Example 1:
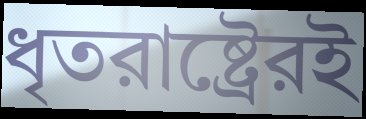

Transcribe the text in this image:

ধৃতরাষ্ট্রেরই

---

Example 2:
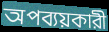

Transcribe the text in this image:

অপব্যয়কারী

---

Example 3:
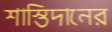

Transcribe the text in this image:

শাস্তিদানের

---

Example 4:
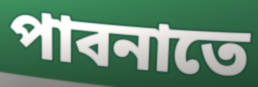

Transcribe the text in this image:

পাবনাতে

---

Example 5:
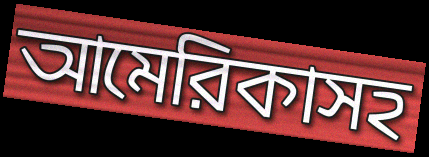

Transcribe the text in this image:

আমেরিকাসহ